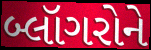
બ્લૉગરોને